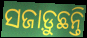
ସଜାଡ଼ୁଛନ୍ତି